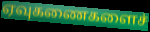
ஏவுகணைகளைச்